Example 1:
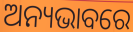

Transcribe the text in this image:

ଅନ୍ୟଭାବରେ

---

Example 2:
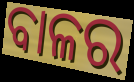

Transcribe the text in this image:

ବାଳର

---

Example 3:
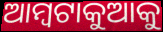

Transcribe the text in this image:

ଆମ୍ବଟାକୁଆକୁ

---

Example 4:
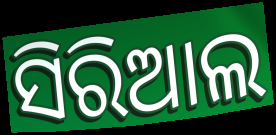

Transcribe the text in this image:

ସିରିଆଲ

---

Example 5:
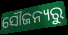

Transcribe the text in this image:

ସୌଜନ୍ୟରୁ